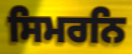
ਸਿਮਰਨਿ